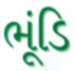
ભૂંડિ